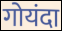
गोयंदा